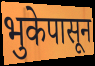
भुकेपासून